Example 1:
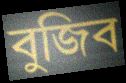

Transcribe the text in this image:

বুজিব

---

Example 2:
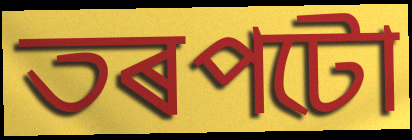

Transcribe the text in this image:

তৰপটো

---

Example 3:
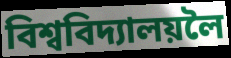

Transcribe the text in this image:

বিশ্ববিদ্যালয়লৈ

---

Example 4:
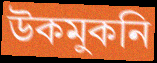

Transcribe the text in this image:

উকমুকনি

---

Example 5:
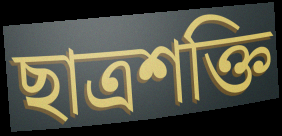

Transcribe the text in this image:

ছাত্ৰশক্তি